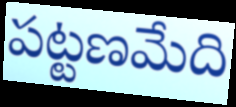
పట్టణమేది